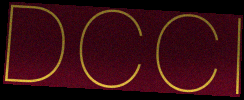
DCCI